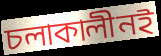
চলাকালীনই